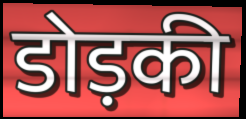
डोड़की